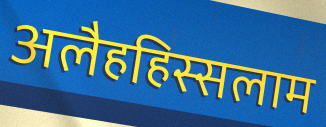
अलैहहिस्सलाम